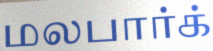
மலபார்க்